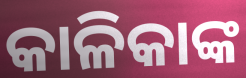
କାଳିକାଙ୍କ